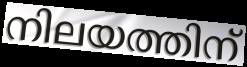
നിലയത്തിന്